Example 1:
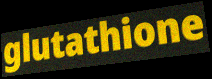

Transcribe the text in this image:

glutathione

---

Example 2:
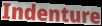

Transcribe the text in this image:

Indenture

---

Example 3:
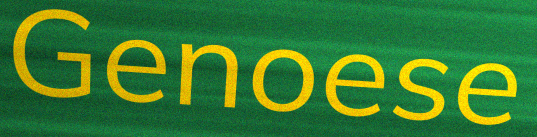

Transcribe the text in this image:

Genoese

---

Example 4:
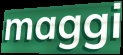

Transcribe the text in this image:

maggi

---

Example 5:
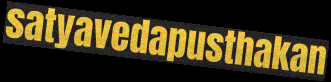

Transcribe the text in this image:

satyavedapusthakan